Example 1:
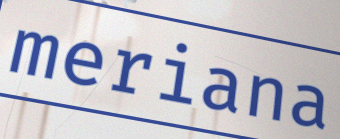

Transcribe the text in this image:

meriana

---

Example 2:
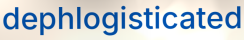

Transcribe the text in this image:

dephlogisticated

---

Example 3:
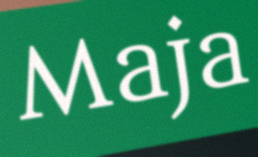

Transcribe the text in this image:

Maja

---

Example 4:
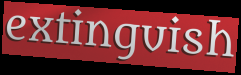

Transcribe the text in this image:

extinguish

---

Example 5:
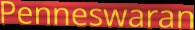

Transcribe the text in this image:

Penneswaran